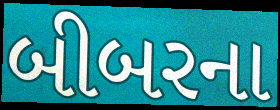
બીબરના